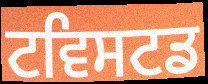
ਟਵਿਸਟਡ